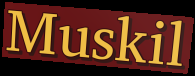
Muskil